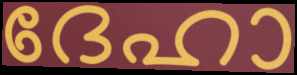
ദേഹാ